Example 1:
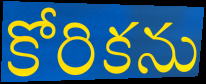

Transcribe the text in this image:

కోరికను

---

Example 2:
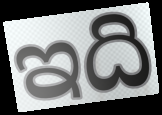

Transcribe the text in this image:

ఇది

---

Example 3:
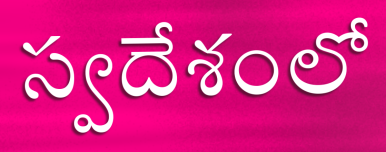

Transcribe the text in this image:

స్వదేశంలో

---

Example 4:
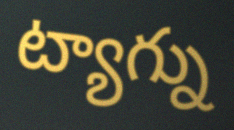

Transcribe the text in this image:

ట్యాగ్ను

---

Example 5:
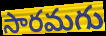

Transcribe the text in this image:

సారమగు